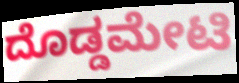
ದೊಡ್ಡಮೇಟಿ